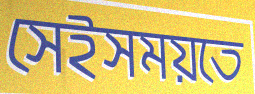
সেইসময়তে